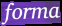
forma